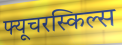
फ्यूचरस्किल्स